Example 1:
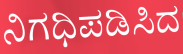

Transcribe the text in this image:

ನಿಗಧಿಪಡಿಸಿದ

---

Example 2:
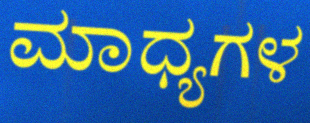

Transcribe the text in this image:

ಮಾಧ್ಯಗಳ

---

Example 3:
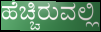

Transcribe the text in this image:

ಹೆಚ್ಚಿರುವಲ್ಲಿ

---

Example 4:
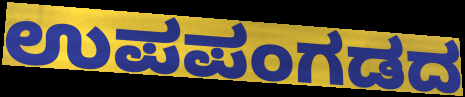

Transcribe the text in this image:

ಉಪಪಂಗಡದ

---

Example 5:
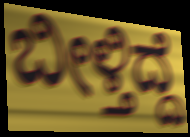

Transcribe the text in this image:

ಬೀಳ್ತಿದ್ದೆ